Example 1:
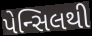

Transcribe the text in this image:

પેન્સિલથી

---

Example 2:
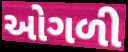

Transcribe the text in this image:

ઓગળી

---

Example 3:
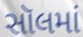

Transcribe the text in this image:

સૉલમાં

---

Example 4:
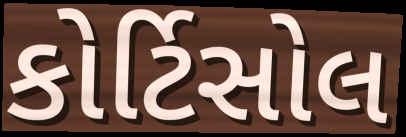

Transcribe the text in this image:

કોર્ટિસોલ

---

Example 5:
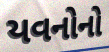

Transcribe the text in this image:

યવનોનો